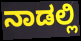
ನಾಡಲ್ಲಿ